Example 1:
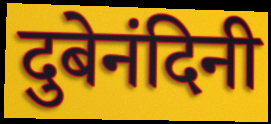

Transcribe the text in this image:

दुबेनंदिनी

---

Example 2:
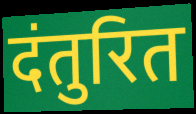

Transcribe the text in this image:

दंतुरित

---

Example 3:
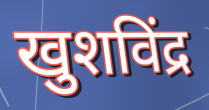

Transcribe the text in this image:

खुशविंद्र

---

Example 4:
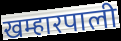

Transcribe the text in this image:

खम्हारपाली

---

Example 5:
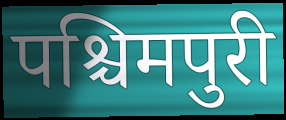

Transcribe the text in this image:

पश्चिमपुरी